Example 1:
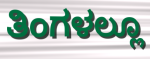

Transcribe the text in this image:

ತಿಂಗಳಲ್ಲೂ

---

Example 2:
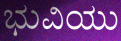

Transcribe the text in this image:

ಭುವಿಯು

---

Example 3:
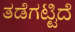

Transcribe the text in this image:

ತಡೆಗಟ್ಟಿದೆ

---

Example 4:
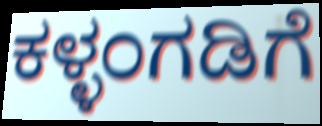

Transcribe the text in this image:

ಕಳ್ಳಂಗಡಿಗೆ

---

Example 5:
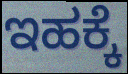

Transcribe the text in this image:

ಇಹಕ್ಕೆ